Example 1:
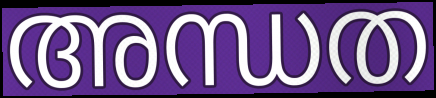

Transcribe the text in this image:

അന്ധത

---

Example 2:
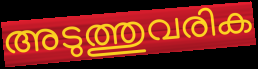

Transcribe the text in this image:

അടുത്തുവരിക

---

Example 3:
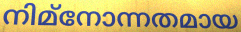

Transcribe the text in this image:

നിമ്നോന്നതമായ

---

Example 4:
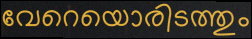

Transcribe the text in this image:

വേറെയൊരിടത്തും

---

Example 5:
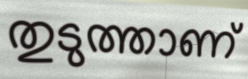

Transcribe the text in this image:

തുടുത്താണ്